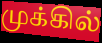
முக்கில்